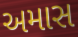
અમાસ